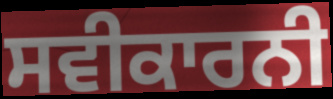
ਸਵੀਕਾਰਨੀ